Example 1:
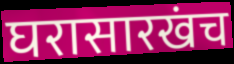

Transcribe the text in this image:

घरासारखंच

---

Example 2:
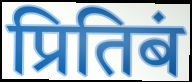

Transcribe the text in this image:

प्रितिबं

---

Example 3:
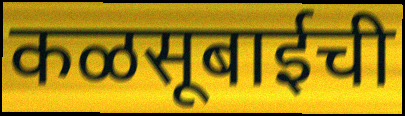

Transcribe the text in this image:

कळसूबाईची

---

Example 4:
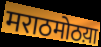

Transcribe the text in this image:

मराठमोठय़ा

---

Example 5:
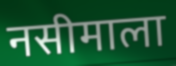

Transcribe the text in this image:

नसीमाला